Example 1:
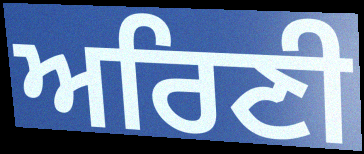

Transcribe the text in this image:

ਅਰਿਣੀ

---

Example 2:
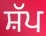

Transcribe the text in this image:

ਸ਼ੱਪ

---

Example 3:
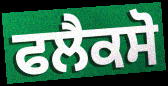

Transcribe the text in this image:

ਫਲੈਕਸੋ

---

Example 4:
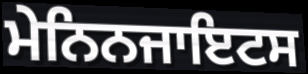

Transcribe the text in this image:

ਮੇਨਿਨਜਾਇਟਸ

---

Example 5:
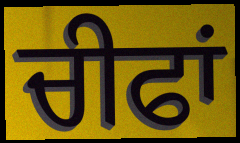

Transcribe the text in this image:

ਚੀਫਾਂ